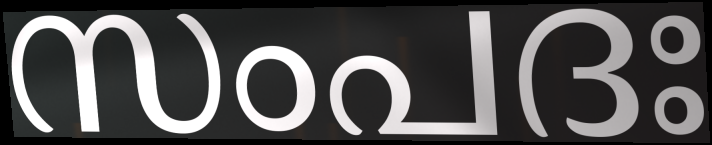
സംപദഃ